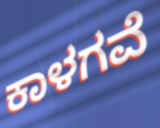
ಕಾಳಗವೆ